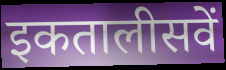
इकतालीसवें